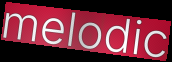
melodic